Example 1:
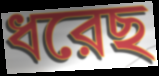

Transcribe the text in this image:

ধরেছ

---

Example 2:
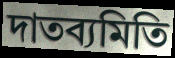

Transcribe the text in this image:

দাতব্যমিতি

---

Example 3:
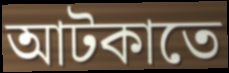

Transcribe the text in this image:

আটকাতে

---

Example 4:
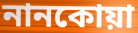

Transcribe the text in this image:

নানকোয়া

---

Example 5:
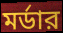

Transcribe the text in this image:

মর্ডার